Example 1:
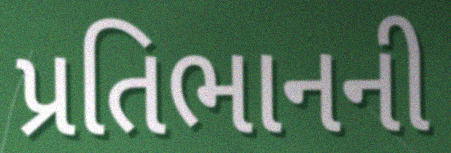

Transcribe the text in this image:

પ્રતિભાનની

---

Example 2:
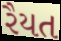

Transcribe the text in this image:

રૈયત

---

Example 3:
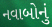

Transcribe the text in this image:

નવાબોનું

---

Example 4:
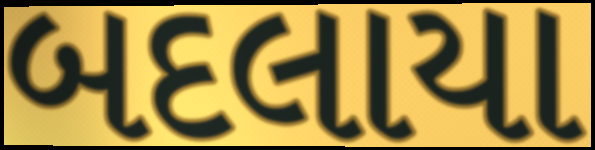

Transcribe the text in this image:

બદલાયા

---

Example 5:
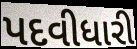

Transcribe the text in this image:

પદવીધારી